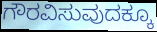
ಗೌರವಿಸುವುದಕ್ಕೂ